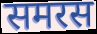
समरस